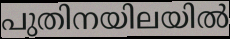
പുതിനയിലയിൽ